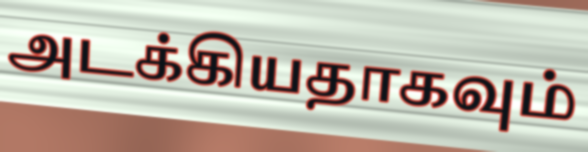
அடக்கியதாகவும்